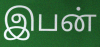
இபன்